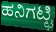
ಹನಿಗಟ್ಟಿ